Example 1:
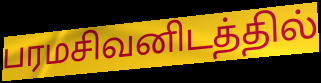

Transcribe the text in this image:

பரமசிவனிடத்தில்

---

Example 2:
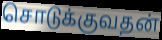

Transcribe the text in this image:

சொடுக்குவதன்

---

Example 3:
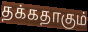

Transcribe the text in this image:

தக்கதாகும்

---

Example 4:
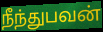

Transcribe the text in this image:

நீந்துபவன்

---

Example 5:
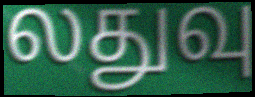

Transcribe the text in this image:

லதுவு